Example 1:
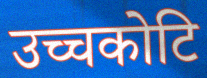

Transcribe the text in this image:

उच्चकोटि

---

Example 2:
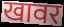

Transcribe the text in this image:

खावर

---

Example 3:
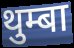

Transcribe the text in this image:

थुम्बा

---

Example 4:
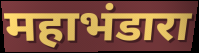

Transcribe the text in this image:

महाभंडारा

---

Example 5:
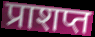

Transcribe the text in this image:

प्राशप्त